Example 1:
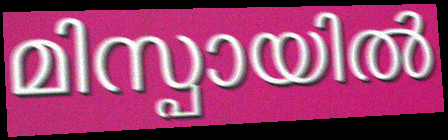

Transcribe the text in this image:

മിസ്പായിൽ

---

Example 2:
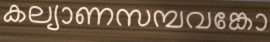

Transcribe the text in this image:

കല്യാണസമ്പവങ്കോ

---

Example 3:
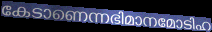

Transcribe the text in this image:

കേടാണെന്നഭിമാനമോടിഹ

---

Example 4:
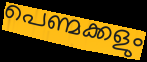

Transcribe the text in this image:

പെണ്മക്കളും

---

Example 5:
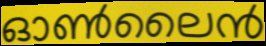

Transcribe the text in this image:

ഓൺലൈൻ